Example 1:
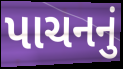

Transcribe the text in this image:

પાચનનું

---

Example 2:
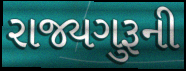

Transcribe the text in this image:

રાજ્યગુરૂની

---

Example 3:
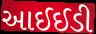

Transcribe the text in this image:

આઈઈડી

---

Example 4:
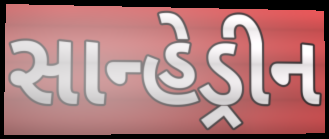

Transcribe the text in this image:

સાન્હેડ્રીન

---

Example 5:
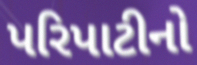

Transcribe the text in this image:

પરિપાટીનો